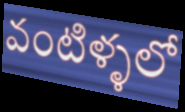
వంటిళ్ళలో